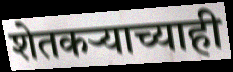
शेतकऱ्याच्याही